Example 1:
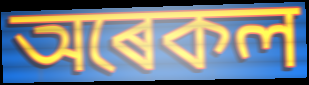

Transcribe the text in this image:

অৰেকল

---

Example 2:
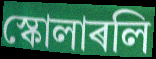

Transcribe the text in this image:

স্কোলাৰলি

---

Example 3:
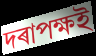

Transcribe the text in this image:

দৰাপক্ষই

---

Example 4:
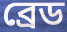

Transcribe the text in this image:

ব্ৰেড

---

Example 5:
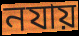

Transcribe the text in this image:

নযায়